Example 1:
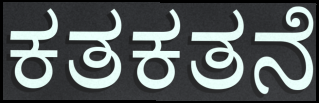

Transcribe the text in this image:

ಕತಕತನೆ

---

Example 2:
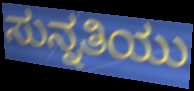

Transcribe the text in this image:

ಸುನ್ನತಿಯು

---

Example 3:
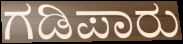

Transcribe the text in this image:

ಗಡಿಪಾರು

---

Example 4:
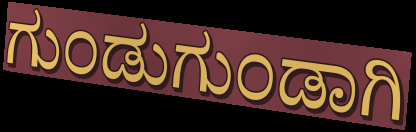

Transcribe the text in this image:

ಗುಂಡುಗುಂಡಾಗಿ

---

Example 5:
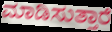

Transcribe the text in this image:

ಮಾಡಿಸುತ್ತಾರೆ